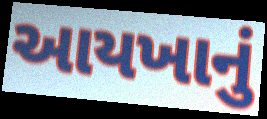
આયખાનું